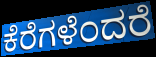
ಕೆರೆಗಳೆಂದರೆ